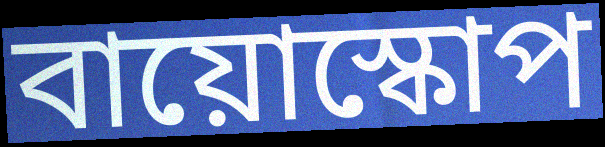
বায়োস্কোপ